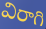
విరాగి